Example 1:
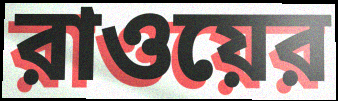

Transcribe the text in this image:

রাওয়ের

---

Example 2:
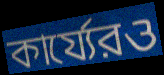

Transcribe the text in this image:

কার্য্যেরও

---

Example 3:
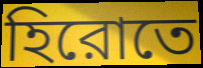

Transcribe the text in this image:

হিরোতে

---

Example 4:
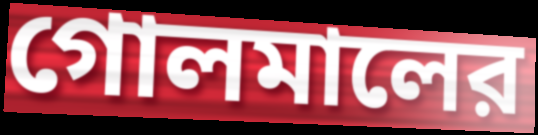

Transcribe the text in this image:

গোলমালের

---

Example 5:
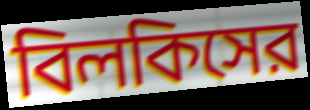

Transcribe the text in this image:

বিলকিসের